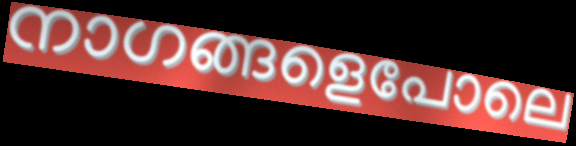
നാഗങ്ങളെപോലെ